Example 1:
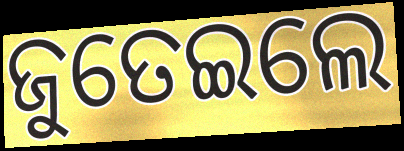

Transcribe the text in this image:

ଜୁତେଇଲେ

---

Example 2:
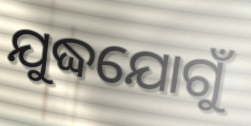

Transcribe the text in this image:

ଯୁଦ୍ଧଯୋଗୁଁ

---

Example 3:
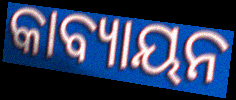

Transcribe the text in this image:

କାବ୍ୟାୟନ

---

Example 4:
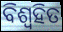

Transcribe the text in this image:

ବିଶ୍ଵହିତ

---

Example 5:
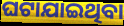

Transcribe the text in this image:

ଘଟାଯାଇଥିବା